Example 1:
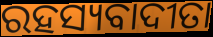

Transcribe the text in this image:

ରହସ୍ୟବାଦୀତା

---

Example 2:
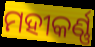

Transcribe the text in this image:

ମହୀକର୍ଣ୍ଣ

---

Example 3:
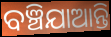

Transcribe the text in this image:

ବଞ୍ଚିଯାଆନ୍ତି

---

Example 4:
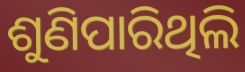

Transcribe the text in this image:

ଶୁଣିପାରିଥିଲି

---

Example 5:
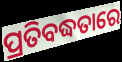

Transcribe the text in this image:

ପ୍ରତିବଦ୍ଧତାରେ